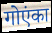
गोएंका